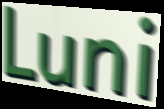
Luni